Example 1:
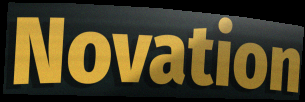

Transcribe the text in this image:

Novation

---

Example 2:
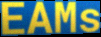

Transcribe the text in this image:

EAMs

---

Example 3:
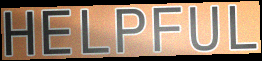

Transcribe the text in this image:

HELPFUL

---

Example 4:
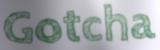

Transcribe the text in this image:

Gotcha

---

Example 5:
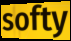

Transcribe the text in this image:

softy